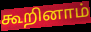
கூறினாம்